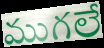
ముగలే